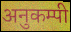
अनुकम्पी